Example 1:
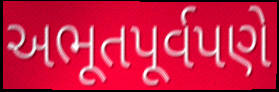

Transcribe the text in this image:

અભૂતપૂર્વપણે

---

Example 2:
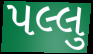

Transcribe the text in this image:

પલ્લુ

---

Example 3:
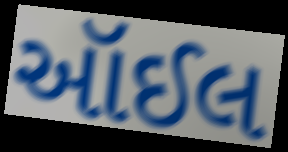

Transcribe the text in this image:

ઑઈલ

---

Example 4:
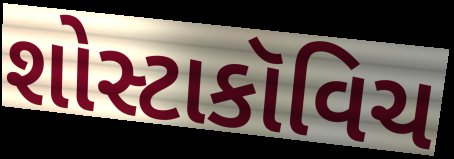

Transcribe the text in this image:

શોસ્ટાકૉવિચ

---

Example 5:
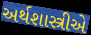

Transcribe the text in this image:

અર્થશાસ્ત્રીએ